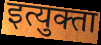
इत्युक्ता